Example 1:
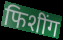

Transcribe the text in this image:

फिशींग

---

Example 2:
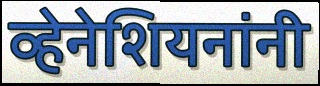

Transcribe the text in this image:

व्हेनेशियनांनी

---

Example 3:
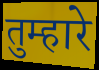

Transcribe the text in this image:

तुम्हारे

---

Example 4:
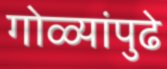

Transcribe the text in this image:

गोळ्यांपुढे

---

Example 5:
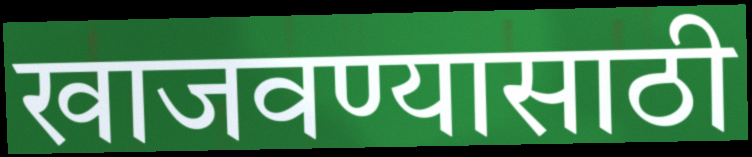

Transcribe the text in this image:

खाजवण्यासाठी